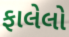
ફાલેલો